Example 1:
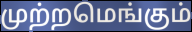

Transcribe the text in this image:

முற்றமெங்கும்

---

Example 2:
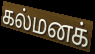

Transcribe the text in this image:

கல்மனக்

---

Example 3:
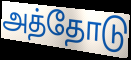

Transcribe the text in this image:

அத்தோடு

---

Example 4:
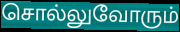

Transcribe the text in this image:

சொல்லுவோரும்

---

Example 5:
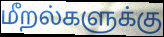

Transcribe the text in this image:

மீறல்களுக்கு